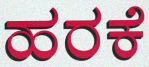
ಹರಕೆ